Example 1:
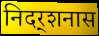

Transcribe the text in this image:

निदर्शनास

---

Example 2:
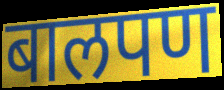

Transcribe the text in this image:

बालपण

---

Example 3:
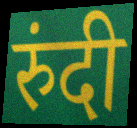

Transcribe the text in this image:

रुंदी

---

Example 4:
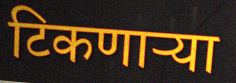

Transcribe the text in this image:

टिकणाऱ्या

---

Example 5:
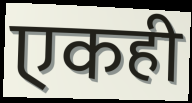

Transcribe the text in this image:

एकही